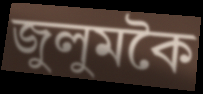
জুলুমকৈ